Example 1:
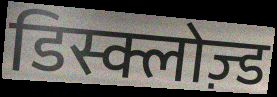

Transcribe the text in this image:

डिस्क्लोज़्ड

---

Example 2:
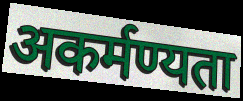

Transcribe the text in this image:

अकर्मण्यता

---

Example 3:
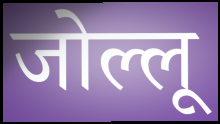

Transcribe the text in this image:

जोल्लू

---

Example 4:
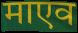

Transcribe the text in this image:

माएव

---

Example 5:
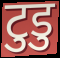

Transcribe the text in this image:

टुडु